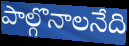
పాల్గొనాలనేది